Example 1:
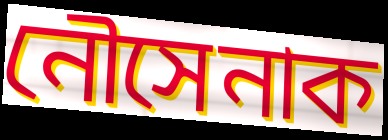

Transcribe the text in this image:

নৌসেনাক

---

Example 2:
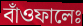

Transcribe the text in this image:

বাঁওফালেঃ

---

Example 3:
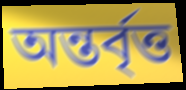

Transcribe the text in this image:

অন্তৰ্বৃত্ত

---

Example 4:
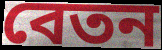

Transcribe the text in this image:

বেতন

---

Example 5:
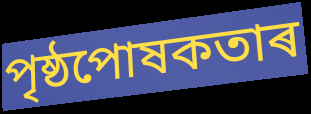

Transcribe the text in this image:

পৃষ্ঠপোষকতাৰ